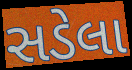
સડેલા